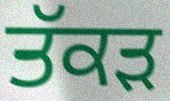
ਤੱਕੜ